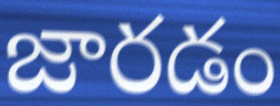
జారడం